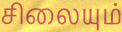
சிலையும்